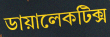
ডায়ালেকটিক্স